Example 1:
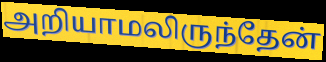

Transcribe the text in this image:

அறியாமலிருந்தேன்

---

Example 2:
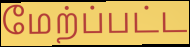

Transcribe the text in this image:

மேற்ப்பட்ட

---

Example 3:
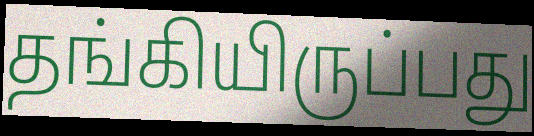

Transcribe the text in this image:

தங்கியிருப்பது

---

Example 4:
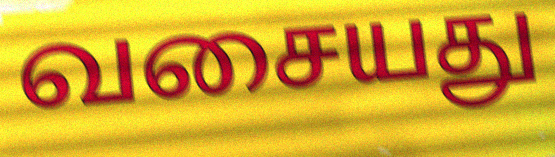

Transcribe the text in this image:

வசையது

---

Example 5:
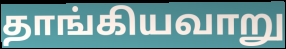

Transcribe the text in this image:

தாங்கியவாறு